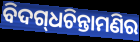
ବିଦଗ୍‌ଧଚିନ୍ତାମଣିର